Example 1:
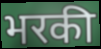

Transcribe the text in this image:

भरकी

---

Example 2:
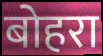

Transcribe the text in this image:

बोहरा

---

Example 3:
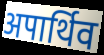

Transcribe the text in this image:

अपार्थिव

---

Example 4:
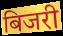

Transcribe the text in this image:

बिजरी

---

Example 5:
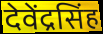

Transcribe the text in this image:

देवेंद्रसिंह